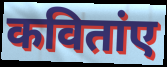
कवितांए